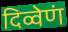
दिव्वेणं